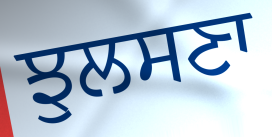
ਝੁਲਸਣਾ